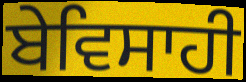
ਬੇਵਿਸਾਹੀ